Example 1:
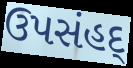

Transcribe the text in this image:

ઉપસંહદ્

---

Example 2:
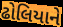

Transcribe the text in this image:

ઢોલિયાને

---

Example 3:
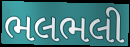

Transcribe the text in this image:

ભલભલી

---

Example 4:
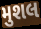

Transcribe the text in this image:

મુશલ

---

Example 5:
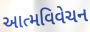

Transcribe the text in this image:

આત્મવિવેચન